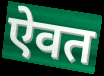
ऐवत